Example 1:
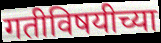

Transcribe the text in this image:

गतीविषयीच्या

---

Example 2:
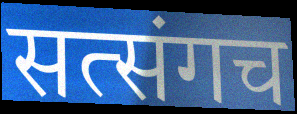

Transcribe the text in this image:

सत्संगच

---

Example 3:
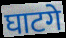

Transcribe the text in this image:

घाटगे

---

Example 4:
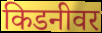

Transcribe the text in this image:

किडनीवर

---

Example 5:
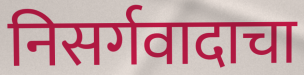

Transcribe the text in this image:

निसर्गवादाचा